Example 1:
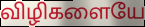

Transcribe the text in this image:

விழிகளையே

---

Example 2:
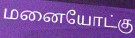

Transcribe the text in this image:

மனையோட்கு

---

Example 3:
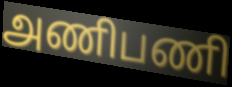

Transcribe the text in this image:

அணிபணி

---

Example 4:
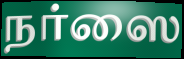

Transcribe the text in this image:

நர்ஸை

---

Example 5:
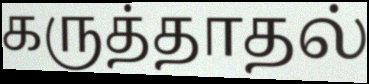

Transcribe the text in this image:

கருத்தாதல்